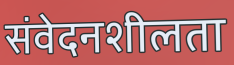
संवेदनशीलता